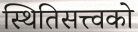
स्थितिसत्त्वको